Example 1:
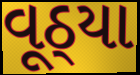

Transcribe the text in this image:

વૂઠ્યા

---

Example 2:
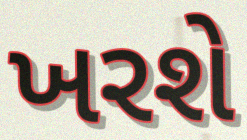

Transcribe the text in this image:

ખરશે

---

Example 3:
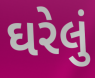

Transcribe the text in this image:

ઘરેલું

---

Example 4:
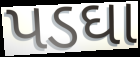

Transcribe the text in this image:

પડઘા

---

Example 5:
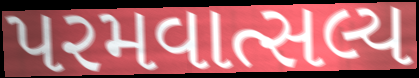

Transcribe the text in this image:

પરમવાત્સલ્ય